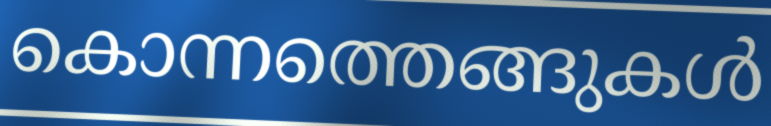
കൊന്നത്തെങ്ങുകൾ